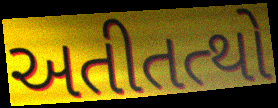
અતીતત્થો